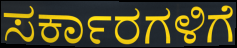
ಸರ್ಕಾರಗಳಿಗೆ